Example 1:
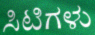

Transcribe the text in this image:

ಸಿಟಿಗಳು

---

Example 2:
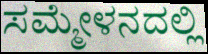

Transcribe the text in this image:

ಸಮ್ಮೇಳನದಲ್ಲಿ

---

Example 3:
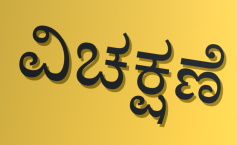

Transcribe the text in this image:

ವಿಚಕ್ಷಣೆ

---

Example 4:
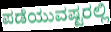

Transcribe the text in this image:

ಪಡೆಯುವಷ್ಟರಲ್ಲಿ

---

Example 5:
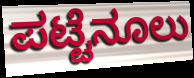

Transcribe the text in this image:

ಪಟ್ಟೆನೂಲು